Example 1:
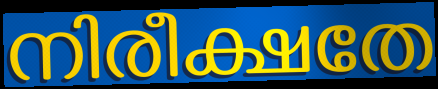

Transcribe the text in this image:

നിരീക്ഷതേ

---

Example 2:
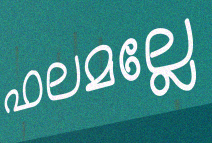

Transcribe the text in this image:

ഫലമല്ലേ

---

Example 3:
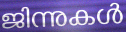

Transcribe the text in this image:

ജിന്നുകൾ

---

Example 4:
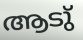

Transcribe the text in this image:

ആടു്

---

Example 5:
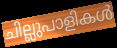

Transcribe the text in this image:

ചില്ലുപാളികൾ